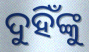
ଦୁହିଁଙ୍କୁ